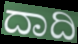
ದಾದಿ